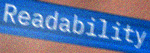
Readability